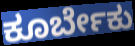
ಕೂರ್ಬೇಕು